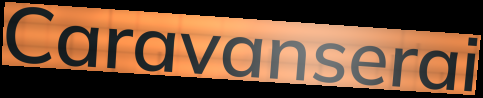
Caravanserai